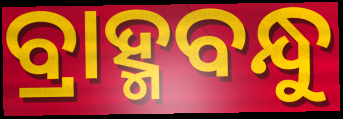
ବ୍ରାହ୍ମବନ୍ଧୁ